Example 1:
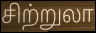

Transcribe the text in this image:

சிற்றுலா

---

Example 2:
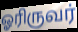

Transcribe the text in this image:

ஓரிருவர்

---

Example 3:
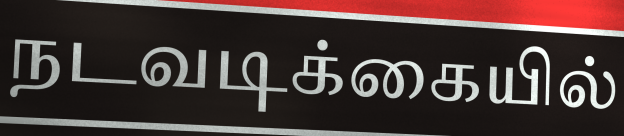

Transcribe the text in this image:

நடவடிக்கையில்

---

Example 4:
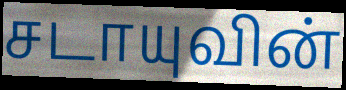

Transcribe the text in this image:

சடாயுவின்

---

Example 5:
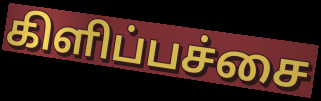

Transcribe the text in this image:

கிளிப்பச்சை